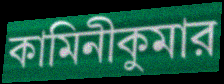
কামিনীকুমার